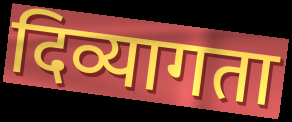
दिव्यागता